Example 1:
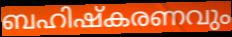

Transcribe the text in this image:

ബഹിഷ്കരണവും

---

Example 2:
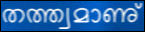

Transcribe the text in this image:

തത്ത്വമാണു്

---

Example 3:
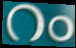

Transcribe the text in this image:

റം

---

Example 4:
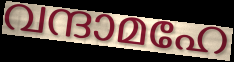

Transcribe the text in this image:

വന്ദാമഹേ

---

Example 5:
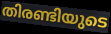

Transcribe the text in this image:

തിരണ്ടിയുടെ